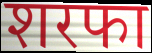
शरफा